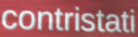
contristati